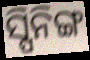
ସ୍ପିନିଙ୍ଗ